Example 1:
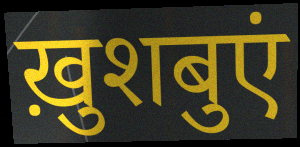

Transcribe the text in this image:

ख़ुशबुएं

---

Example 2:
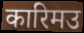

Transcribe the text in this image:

कारिमउ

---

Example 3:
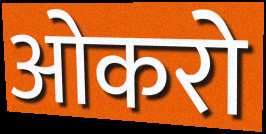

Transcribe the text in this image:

ओकरो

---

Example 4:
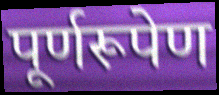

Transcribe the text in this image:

पूर्णरूपेण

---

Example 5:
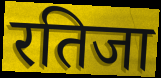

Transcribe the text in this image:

रतिजा